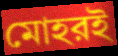
মোহরই